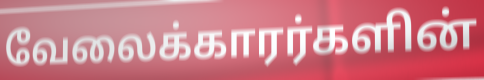
வேலைக்காரர்களின்